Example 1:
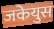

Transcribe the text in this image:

जकेयुस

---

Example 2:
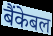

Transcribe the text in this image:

बैंकेबल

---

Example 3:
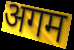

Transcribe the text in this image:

अगम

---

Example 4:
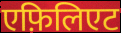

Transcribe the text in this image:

एफ़िलिएट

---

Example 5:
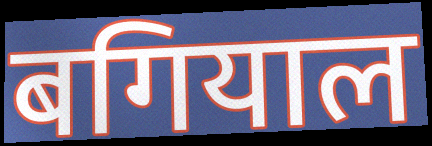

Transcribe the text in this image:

बगियाल